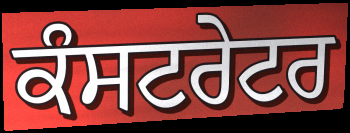
ਕੰਸਟਰੇਟਰ